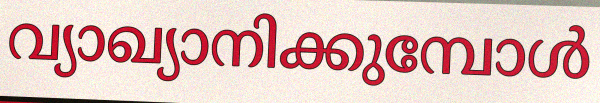
വ്യാഖ്യാനിക്കുമ്പോൾ